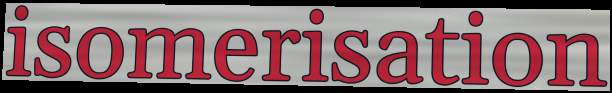
isomerisation